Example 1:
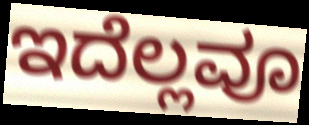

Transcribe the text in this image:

ಇದೆಲ್ಲವೂ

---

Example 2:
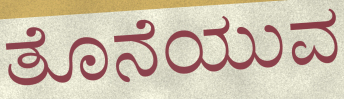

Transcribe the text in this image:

ತೊನೆಯುವ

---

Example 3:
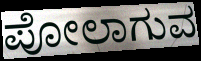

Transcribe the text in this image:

ಪೋಲಾಗುವ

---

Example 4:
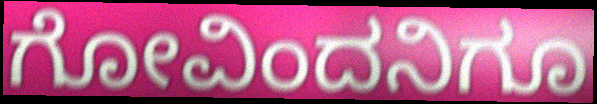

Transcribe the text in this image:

ಗೋವಿಂದನಿಗೂ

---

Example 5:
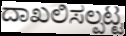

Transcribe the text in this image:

ದಾಖಲಿಸಲ್ಪಟ್ಟ